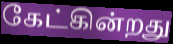
கேட்கின்றது